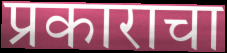
प्रकाराचा